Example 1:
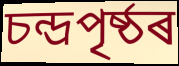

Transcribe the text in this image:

চন্দ্ৰপৃষ্ঠৰ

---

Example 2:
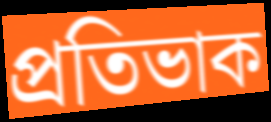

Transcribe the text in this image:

প্ৰতিভাক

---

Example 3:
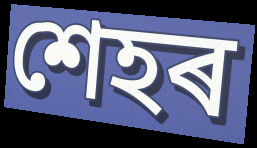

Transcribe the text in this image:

শেহৰ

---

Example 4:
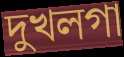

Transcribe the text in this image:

দুখলগা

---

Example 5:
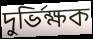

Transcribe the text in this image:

দুৰ্ভিক্ষক